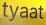
tyaat